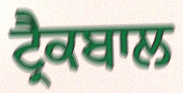
ਟ੍ਰੈਕਬਾਲ